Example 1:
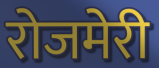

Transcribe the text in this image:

रोजमेरी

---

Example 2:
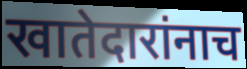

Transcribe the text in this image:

खातेदारांनाच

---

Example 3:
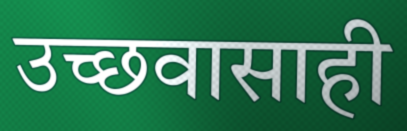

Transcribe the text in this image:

उच्छवासाही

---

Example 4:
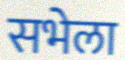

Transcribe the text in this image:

सभेला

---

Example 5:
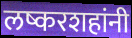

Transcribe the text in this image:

लष्करशहांनी